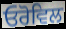
ਓਰੋਵਿਲ